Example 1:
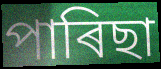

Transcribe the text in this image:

পাৰিছা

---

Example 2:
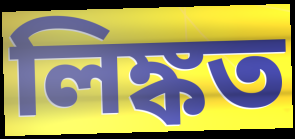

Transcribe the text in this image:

লিঙ্কত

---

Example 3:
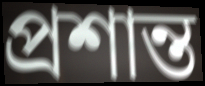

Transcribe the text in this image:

প্ৰশান্ত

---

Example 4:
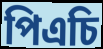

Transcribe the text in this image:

পিএচি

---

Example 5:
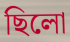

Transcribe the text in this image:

ছিলো